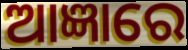
ଆଜ୍ଞାରେ